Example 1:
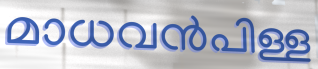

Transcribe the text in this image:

മാധവൻപിള്ള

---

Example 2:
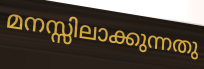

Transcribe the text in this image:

മനസ്സിലാക്കുന്നതു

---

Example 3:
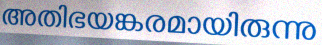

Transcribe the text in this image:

അതിഭയങ്കരമായിരുന്നു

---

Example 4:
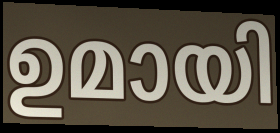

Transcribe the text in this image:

ഉമായി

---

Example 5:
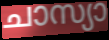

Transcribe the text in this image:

ചാസ്യാ